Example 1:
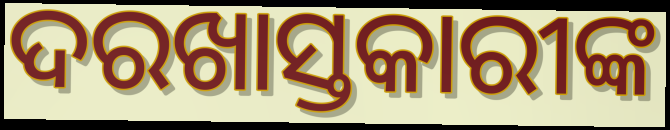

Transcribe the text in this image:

ଦରଖାସ୍ତକାରୀଙ୍କ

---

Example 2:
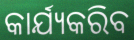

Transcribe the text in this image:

କାର୍ଯ୍ୟକରିବ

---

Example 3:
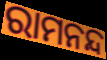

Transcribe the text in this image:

ରାମନନ୍ଦ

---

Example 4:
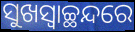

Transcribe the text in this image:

ସୁଖସ୍ୱାଚ୍ଛନ୍ଦରେ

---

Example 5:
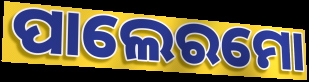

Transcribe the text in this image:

ପାଲେରମୋ